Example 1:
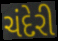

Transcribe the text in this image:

ચંદેરી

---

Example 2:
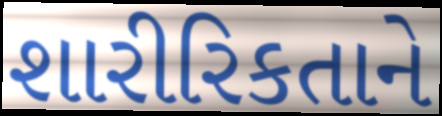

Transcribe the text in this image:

શારીરિકતાને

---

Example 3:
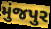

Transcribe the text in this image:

મુંજપુર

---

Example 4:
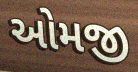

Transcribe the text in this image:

ઓમજી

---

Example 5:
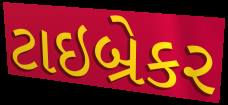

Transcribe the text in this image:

ટાઇબ્રેકર